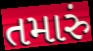
તમારું